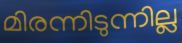
മിരന്നിടുന്നില്ല